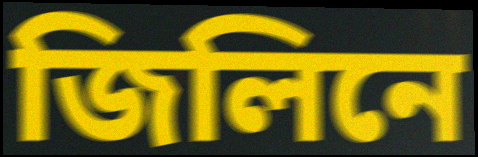
জিলিনে